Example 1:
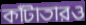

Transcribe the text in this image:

কাঁটাতারও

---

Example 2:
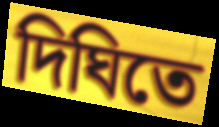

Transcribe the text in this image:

দিঘিতে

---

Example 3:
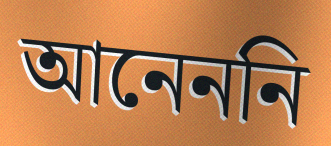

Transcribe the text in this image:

আনেননি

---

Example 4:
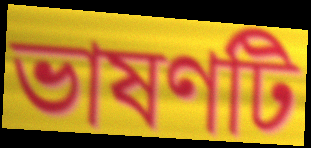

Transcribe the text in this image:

ভাষণটি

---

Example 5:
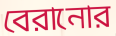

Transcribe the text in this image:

বেরানোর